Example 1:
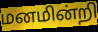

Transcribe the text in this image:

மனமின்றி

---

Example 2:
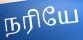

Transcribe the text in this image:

நரியே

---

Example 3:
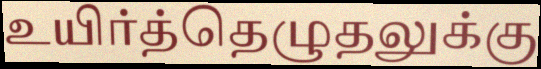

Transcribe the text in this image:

உயிர்த்தெழுதலுக்கு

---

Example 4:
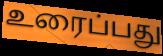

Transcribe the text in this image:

உரைப்பது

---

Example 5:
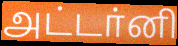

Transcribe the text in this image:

அட்டர்னி